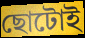
ছোটোই